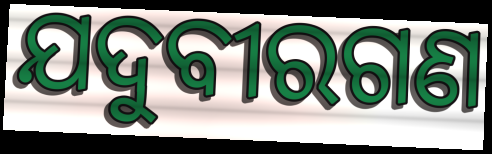
ଯଦୁବୀରଗଣ